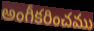
అంగీకరించము